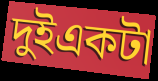
দুইএকটা